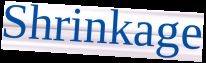
Shrinkage